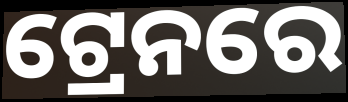
ଟ୍ରେନରେ